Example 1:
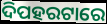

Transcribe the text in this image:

ଦିପହରଟାରେ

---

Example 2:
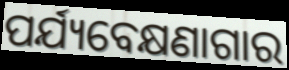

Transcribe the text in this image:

ପର୍ଯ୍ୟବେକ୍ଷଣାଗାର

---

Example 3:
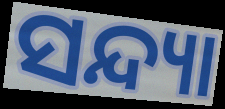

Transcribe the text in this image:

ସନ୍ଦ୍ୟା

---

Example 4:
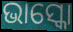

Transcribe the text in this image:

ଭାସ୍କୋ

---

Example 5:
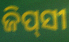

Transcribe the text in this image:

ଜିପ୍‍ସୀ